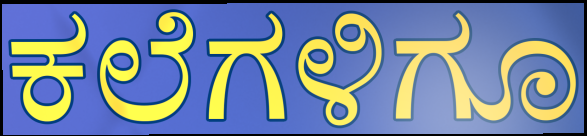
ಕಲೆಗಳಿಗೂ